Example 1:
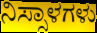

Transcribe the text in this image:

ನಿಸ್ಸಾಳಗಳು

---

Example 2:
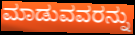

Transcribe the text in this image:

ಮಾಡುವವರನ್ನು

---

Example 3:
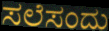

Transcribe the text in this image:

ಸಲೆಸಂದು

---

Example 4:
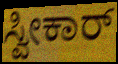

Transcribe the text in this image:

ಸ್ವೀಕಾರ್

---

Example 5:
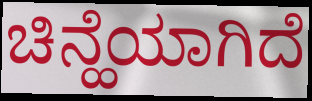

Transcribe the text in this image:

ಚಿನ್ಹೆಯಾಗಿದೆ